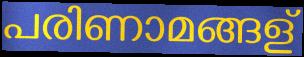
പരിണാമങ്ങള്